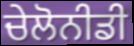
ਚੇਲੋਨੀਡੀ